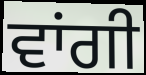
ਵਾਂਗੀ